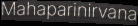
Mahaparinirvana